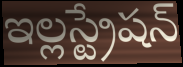
ఇల్లస్ట్రేషన్